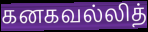
கனகவல்லித்